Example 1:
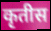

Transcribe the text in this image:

कृतीस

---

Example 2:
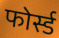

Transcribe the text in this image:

फोर्स्ड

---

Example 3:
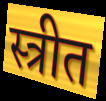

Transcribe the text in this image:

स्त्रीत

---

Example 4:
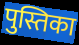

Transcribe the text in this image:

पुस्तिका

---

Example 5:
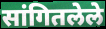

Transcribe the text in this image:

सांगितलेले